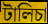
টালিচা